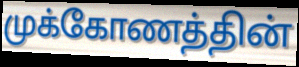
முக்கோணத்தின்